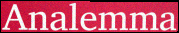
Analemma